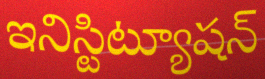
ఇనిస్టిట్యూషన్